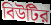
বিউটির